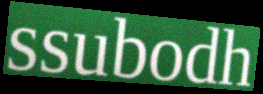
ssubodh